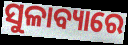
ସୁଳାବ୍ୟାରେ